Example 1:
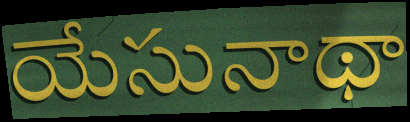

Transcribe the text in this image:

యేసునాథా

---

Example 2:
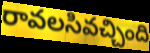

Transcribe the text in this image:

రావలసివచ్చింది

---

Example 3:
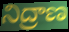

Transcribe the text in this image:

నిద్రాణ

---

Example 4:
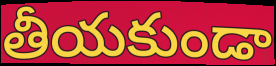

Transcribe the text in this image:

తీయకుండా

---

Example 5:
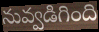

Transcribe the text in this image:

నువ్వడిగింది